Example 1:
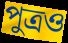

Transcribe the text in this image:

পুত্রও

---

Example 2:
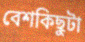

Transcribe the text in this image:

বেশকিছুটা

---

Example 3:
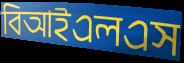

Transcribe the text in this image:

বিআইএলএস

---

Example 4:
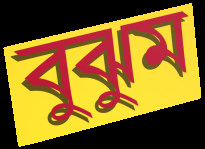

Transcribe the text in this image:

বুঝুম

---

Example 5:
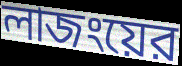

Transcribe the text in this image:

লাজংয়ের